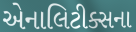
એનાલિટીક્સના